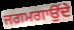
ਜਗਮਗਾਉਂਦੇ